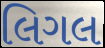
લિગલ